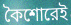
কৈশোরেই